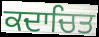
ਕਦਾਚਿਤ